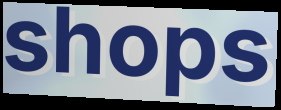
shops